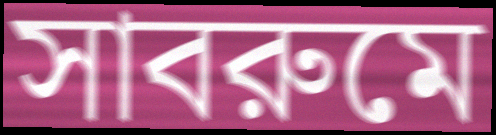
সাবরুমে